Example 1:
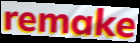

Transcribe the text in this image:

remake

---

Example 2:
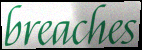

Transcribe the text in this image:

breaches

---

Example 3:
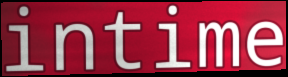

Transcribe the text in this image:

intime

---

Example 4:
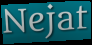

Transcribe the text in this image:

Nejat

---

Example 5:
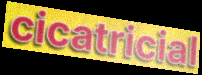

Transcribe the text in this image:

cicatricial